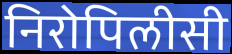
निरोपिलीसी